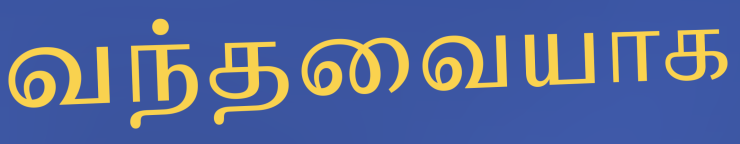
வந்தவையாக